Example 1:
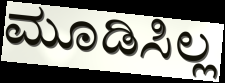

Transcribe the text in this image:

ಮೂಡಿಸಿಲ್ಲ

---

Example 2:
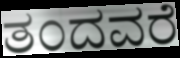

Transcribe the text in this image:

ತಂದವರೆ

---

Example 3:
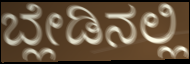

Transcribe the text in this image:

ಬ್ಲೇಡಿನಲ್ಲಿ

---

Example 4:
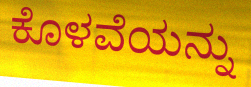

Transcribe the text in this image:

ಕೊಳವೆಯನ್ನು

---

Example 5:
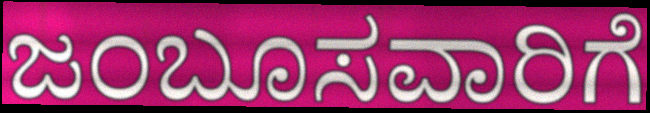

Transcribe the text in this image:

ಜಂಬೂಸವಾರಿಗೆ